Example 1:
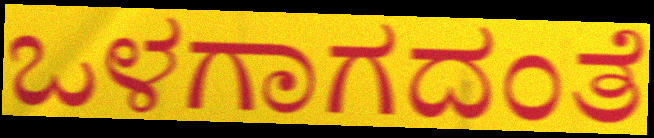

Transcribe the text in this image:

ಒಳಗಾಗದಂತೆ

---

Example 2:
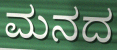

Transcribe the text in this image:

ಮನದ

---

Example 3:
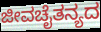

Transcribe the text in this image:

ಜೀವಚೈತನ್ಯದ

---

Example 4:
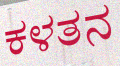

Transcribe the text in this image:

ಕಳತನ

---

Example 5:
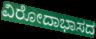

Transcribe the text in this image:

ವಿರೋದಾಭಾಸದ